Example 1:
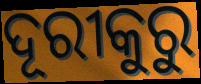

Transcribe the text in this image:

ଦୂରୀକୁରୁ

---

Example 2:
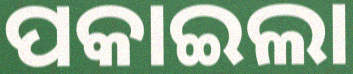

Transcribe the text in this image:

ପକାଇଲା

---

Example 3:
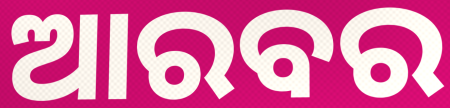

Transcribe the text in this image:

ଆରବର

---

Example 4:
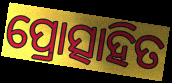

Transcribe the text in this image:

ପ୍ରୋତ୍ସାହିତ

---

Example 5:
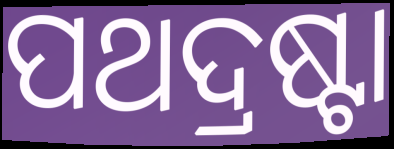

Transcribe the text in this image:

ପଥଦ୍ରଷ୍ଟା